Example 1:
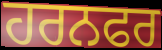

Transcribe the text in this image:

ਹਰਨਫਰ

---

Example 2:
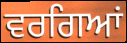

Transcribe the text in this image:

ਵਰਗਿਆਂ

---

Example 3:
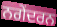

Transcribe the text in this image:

ਨਗੇਂਦਰਨ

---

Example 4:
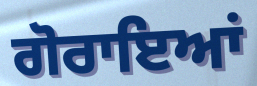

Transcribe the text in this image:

ਗੋਰਾਇਆਂ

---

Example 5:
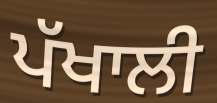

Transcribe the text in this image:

ਪੱਖਾਲੀ